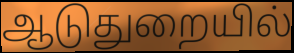
ஆடுதுறையில்